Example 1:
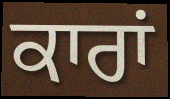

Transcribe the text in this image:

ਕਾਰਾਂ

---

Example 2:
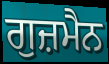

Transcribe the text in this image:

ਗੁਜ਼ਮੈਨ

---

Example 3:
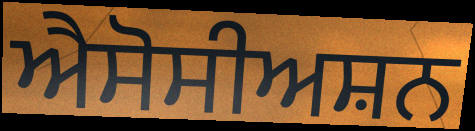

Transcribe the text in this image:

ਐਸੋਸੀਅਸ਼ਨ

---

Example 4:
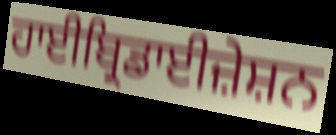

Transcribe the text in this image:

ਹਾਈਬ੍ਰਿਡਾਈਜ਼ੇਸ਼ਨ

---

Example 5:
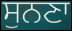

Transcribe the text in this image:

ਸੁਨਣਾ